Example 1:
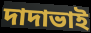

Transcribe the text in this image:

দাদাভাই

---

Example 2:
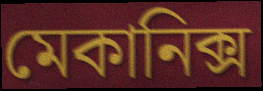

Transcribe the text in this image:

মেকানিক্স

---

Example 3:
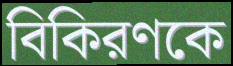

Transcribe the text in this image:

বিকিরণকে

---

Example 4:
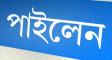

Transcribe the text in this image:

পাইলেন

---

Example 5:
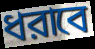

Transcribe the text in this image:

ধরাবে